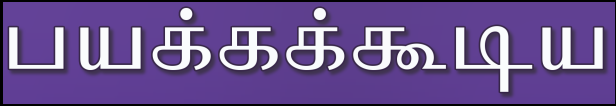
பயக்கக்கூடிய